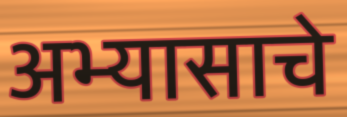
अभ्यासाचे